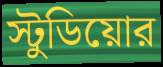
স্টুডিয়োর